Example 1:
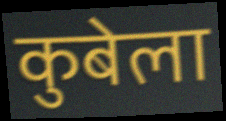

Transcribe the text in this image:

कुबेला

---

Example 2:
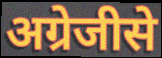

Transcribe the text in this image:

अग्रेजीसे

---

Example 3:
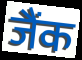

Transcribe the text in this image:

जैंक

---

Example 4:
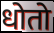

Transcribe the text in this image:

धोतो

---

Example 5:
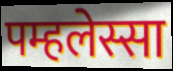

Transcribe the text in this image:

पम्हलेस्सा